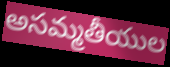
అసమ్మతీయుల